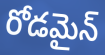
రోడమైన్